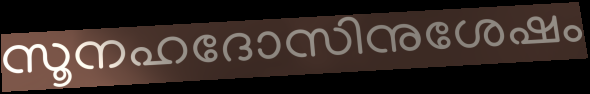
സൂനഹദോസിനുശേഷം